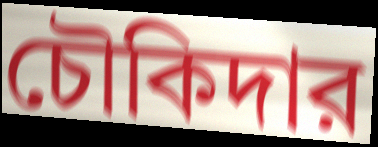
চৌকিদার